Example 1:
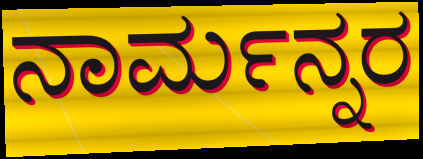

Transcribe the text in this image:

ನಾರ್ಮನ್ನರ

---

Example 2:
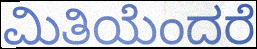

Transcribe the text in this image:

ಮಿತಿಯೆಂದರೆ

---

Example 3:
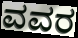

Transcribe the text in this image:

ವವರ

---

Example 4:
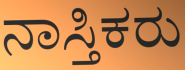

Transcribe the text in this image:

ನಾಸ್ತಿಕರು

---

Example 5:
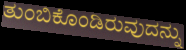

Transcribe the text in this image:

ತುಂಬಿಕೊಂಡಿರುವುದನ್ನು